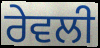
ਰੇਵਲੀ